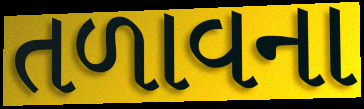
તળાવના